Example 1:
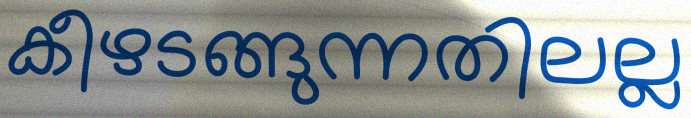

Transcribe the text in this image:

കീഴടങ്ങുന്നതിലല്ല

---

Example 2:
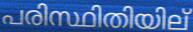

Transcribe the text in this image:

പരിസ്ഥിതിയില്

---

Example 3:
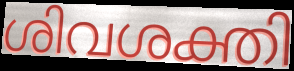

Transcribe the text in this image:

ശിവശക്തി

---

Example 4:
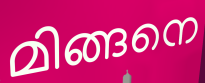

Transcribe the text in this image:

മിങ്ങനെ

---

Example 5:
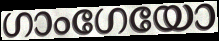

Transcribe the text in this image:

ഗാംഗേയോ